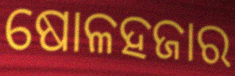
ଷୋଳହଜାର